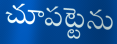
చూపట్టెను